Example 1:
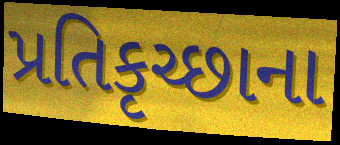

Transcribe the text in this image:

પ્રતિકૃચ્છાના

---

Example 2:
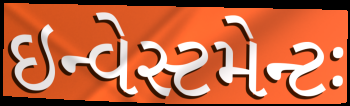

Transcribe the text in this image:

ઇન્વેસ્ટમેન્ટઃ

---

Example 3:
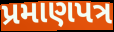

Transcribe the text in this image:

પ્રમાણપત્ર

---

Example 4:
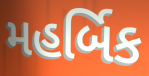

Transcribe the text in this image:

મહર્બિક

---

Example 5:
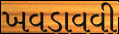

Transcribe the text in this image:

ખવડાવવી